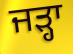
ਜੜ੍ਹਾ